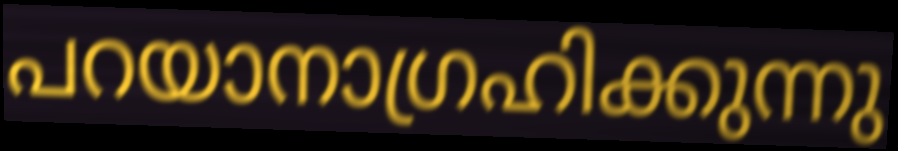
പറയാനാഗ്രഹിക്കുന്നു